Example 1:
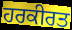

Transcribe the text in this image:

ਹਰਕੀਰਤ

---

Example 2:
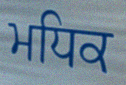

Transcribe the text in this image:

ਮਧਿਕ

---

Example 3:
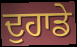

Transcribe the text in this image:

ਦੁਹਾਡੇ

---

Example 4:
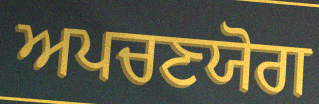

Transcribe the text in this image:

ਅਪਚਣਯੋਗ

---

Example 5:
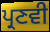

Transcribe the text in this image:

ਪ੍ਰਣਵੀ